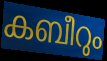
കബീറും